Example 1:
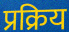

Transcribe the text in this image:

प्रक्रिय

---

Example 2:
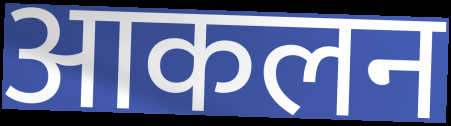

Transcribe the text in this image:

आकलन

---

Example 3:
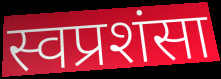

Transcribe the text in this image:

स्वप्रशंसा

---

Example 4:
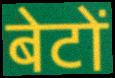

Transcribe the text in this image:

बेटों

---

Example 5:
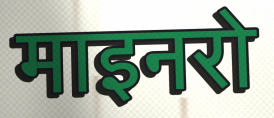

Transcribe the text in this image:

माइनरो